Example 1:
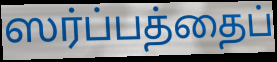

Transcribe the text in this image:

ஸர்ப்பத்தைப்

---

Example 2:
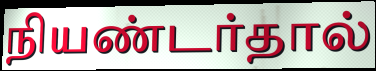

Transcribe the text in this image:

நியண்டர்தால்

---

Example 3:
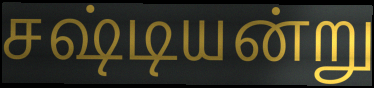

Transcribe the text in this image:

சஷ்டியன்று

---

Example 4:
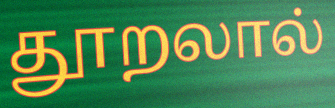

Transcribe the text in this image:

தூறலால்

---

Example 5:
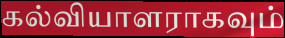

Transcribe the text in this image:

கல்வியாளராகவும்